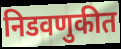
निडवणुकीत